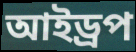
আইড্রপ